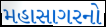
મહાસાગરનો